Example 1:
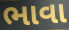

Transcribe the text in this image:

ભાવા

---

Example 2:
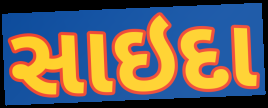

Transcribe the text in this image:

સાઇદા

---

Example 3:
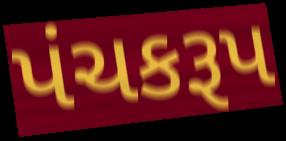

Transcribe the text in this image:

પંચકરૂપ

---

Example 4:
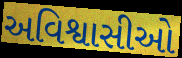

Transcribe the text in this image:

અવિશ્વાસીઓ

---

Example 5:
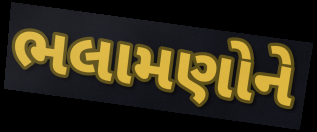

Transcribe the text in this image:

ભલામણોને